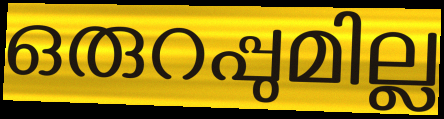
ഒരുറപ്പുമില്ല